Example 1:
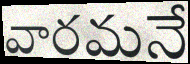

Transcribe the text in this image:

వారమనే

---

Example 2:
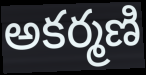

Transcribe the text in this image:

అకర్మణి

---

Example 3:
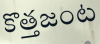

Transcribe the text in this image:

కొత్తజంట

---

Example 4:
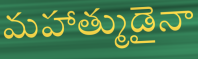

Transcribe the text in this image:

మహాత్ముడైనా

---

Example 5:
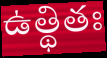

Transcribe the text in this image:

ఉత్థితః